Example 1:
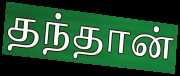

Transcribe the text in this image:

தந்தான்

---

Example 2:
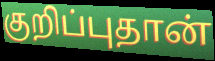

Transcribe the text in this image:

குறிப்புதான்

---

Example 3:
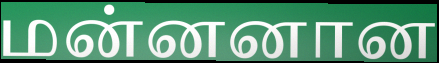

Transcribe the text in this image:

மன்னனான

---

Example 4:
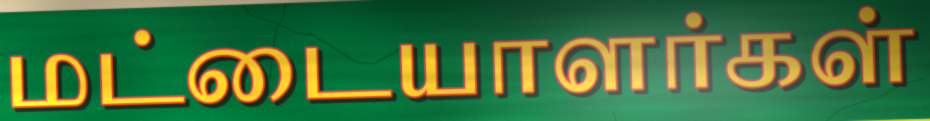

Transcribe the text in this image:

மட்டையாளர்கள்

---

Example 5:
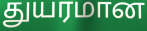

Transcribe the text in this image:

துயரமான